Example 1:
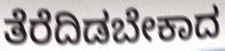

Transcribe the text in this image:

ತೆರೆದಿಡಬೇಕಾದ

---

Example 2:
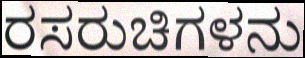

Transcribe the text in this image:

ರಸರುಚಿಗಳನು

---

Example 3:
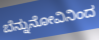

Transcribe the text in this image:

ಬೆನ್ನುನೋವಿನಿಂದ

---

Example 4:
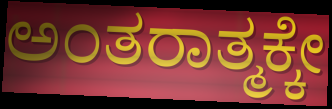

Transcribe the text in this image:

ಅಂತರಾತ್ಮಕ್ಕೇ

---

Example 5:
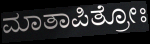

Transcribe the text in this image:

ಮಾತಾಪಿತ್ರೋಃ